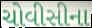
ચોવીસીના